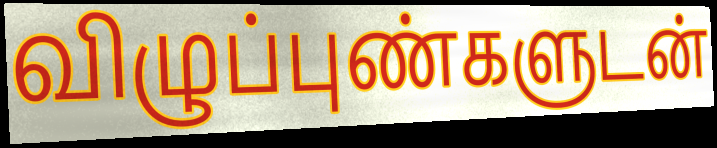
விழுப்புண்களுடன்